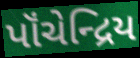
પૉંચેન્દ્રિય